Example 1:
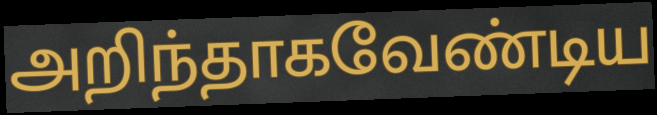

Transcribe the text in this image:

அறிந்தாகவேண்டிய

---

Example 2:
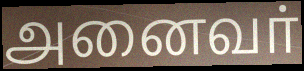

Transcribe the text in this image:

அனைவர்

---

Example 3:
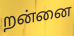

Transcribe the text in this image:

றன்னை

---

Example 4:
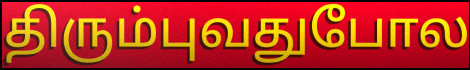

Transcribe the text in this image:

திரும்புவதுபோல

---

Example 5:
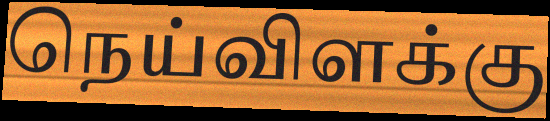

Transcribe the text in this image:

நெய்விளக்கு